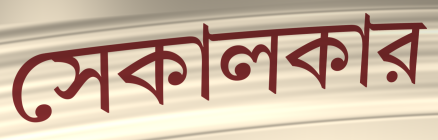
সেকালকার